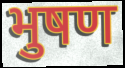
भुषण